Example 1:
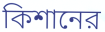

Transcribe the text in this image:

কিশানের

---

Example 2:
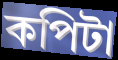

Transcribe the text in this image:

কপিটা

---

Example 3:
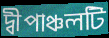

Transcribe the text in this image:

দ্বীপাঞ্চলটি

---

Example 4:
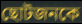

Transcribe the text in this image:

ছোটজনকে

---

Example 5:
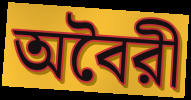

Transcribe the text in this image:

অবৈরী